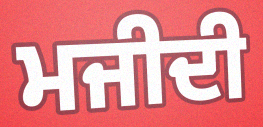
ਮਜੀਦੀ